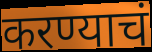
करण्याचं